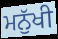
ਮਨੁੱਖੀ